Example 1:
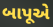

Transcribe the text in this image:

બાપૂએ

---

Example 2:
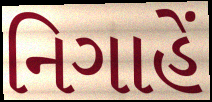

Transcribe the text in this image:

નિગાહેં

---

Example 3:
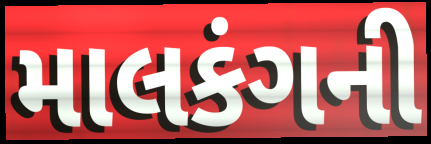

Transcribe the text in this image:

માલકંગની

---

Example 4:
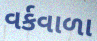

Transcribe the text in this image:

વર્કવાળા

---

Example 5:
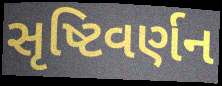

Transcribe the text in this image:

સૃષ્ટિવર્ણન